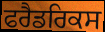
ਫਰੈਡਰਿਕਸ